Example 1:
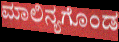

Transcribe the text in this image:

ಮಾಲಿನ್ಯಗೊಂಡ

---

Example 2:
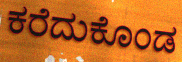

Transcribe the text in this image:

ಕರೆದುಕೊಂಡ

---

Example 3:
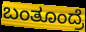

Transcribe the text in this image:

ಬಂತೂಂದ್ರೆ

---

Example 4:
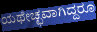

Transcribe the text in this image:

ಯಥೇಚ್ಛವಾಗಿದ್ದರೂ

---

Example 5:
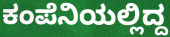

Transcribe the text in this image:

ಕಂಪೆನಿಯಲ್ಲಿದ್ದ